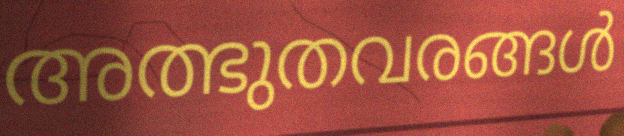
അത്ഭുതവരങ്ങൾ